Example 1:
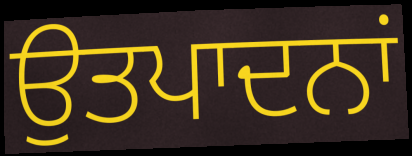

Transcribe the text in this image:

ਉਤਪਾਦਨਾਂ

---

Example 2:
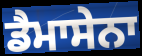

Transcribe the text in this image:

ਡੈਮਾਸੇਨਾ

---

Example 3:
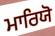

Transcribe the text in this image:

ਮਾਰਿਯੋ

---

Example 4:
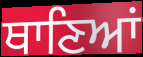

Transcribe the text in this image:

ਥਾਣਿਆਂ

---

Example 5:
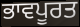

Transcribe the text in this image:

ਭਾਵਪੂਰਤ